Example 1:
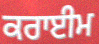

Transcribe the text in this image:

ਕਰਾਈਮ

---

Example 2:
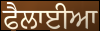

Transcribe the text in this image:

ਫੈਲਾਈਆ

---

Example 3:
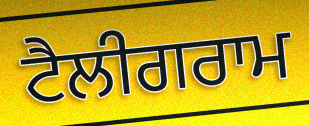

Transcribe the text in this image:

ਟੈਲੀਗਰਾਮ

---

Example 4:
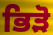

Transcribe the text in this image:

ਭਿੜੋ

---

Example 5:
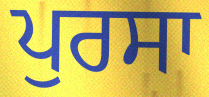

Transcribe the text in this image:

ਪੁਰਸਾ